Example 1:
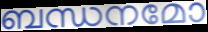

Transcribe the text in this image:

ബന്ധനമോ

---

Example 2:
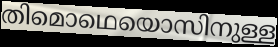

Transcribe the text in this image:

തിമൊഥെയൊസിനുള്ള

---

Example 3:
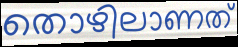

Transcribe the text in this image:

തൊഴിലാണത്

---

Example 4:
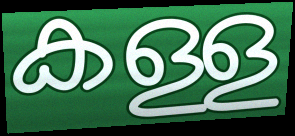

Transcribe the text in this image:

കള്ള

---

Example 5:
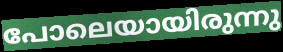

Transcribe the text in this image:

പോലെയായിരുന്നു